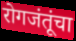
रोगजंतूंचा